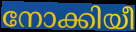
നോക്കിയീ